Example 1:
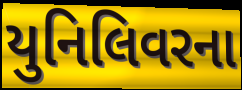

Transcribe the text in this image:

યુનિલિવરના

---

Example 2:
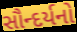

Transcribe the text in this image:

સૌન્દર્યનો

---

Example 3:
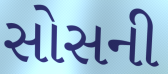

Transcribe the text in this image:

સોસની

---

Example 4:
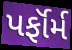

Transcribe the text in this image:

પર્ફૉર્મ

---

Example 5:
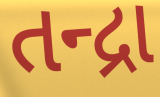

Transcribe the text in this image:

તન્દ્રા